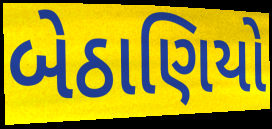
બેઠાણિયો